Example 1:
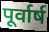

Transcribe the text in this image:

पूर्वार्ष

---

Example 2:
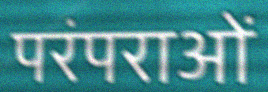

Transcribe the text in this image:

परंपराओं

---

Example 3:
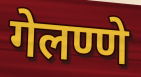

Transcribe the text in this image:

गेलण्णे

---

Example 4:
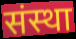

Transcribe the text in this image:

संस्था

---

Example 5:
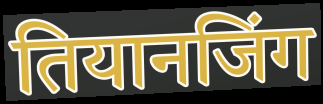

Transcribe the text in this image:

तियानजिंग